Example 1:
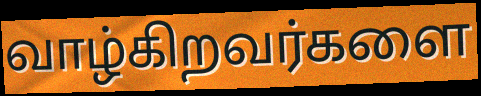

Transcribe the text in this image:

வாழ்கிறவர்களை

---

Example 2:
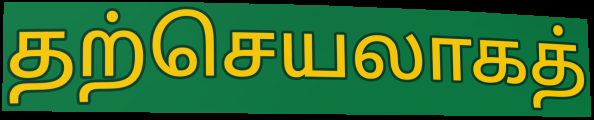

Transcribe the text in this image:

தற்செயலாகத்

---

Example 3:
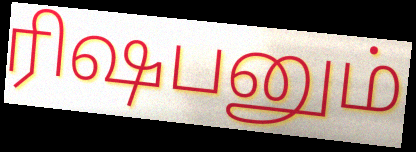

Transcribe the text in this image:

ரிஷபனும்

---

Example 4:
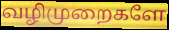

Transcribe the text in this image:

வழிமுறைகளே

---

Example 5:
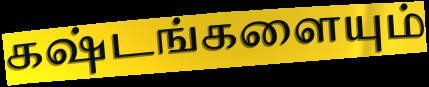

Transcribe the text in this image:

கஷ்டங்களையும்